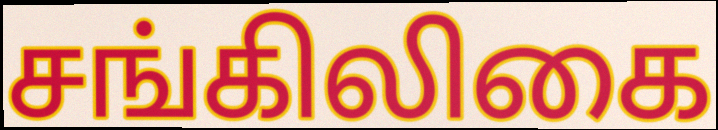
சங்கிலிகை